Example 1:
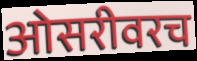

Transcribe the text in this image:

ओसरीवरच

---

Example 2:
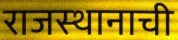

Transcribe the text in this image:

राजस्थानाची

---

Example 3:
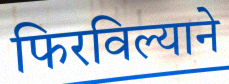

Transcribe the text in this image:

फिरविल्याने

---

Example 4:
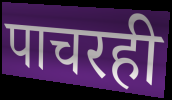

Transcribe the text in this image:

पाचरही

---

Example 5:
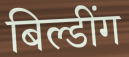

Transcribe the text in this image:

बिल्डींग